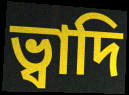
ভ্বাদি